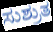
ಸುಶ್ರುತ